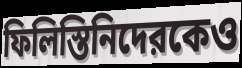
ফিলিস্তিনিদেরকেও